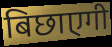
बिछाएगी